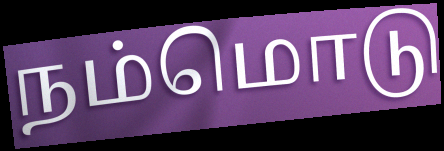
நம்மொடு